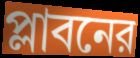
প্লাবনের